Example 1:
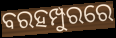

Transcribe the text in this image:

ବରହମ୍ପୁରରେ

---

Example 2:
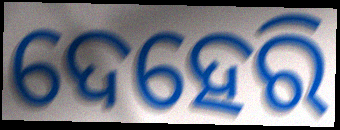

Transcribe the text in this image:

ଦେହେରି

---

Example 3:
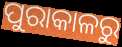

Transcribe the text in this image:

ପୁରାକାଳରୁ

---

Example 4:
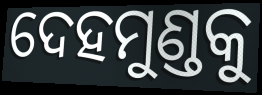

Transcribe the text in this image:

ଦେହମୁଣ୍ଡକୁ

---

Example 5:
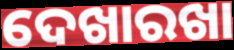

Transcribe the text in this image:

ଦେଖାରଖା